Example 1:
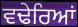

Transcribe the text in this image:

ਵਢੇਰਿਆਂ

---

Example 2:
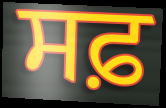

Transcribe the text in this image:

ਸਫ਼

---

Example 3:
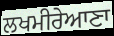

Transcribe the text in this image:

ਲਖਮੀਰੇਆਣਾ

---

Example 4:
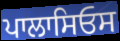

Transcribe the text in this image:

ਪਾਲਾਸਿਓਸ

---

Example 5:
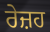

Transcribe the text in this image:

ਰੇਜ਼ਹ